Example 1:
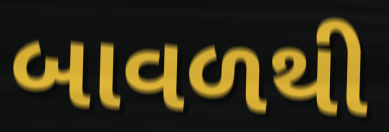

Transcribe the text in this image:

બાવળથી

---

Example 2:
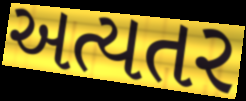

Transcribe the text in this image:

અત્યતર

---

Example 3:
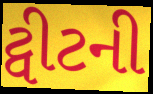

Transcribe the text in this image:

ટ્વીટની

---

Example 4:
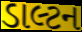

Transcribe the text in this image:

ડાલ્ટન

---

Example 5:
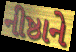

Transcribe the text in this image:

નીષ્ઠાને